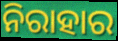
ନିରାହାର